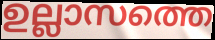
ഉല്ലാസത്തെ